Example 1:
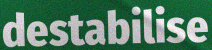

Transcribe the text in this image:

destabilise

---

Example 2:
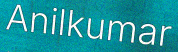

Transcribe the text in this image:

Anilkumar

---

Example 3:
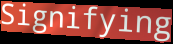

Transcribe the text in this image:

Signifying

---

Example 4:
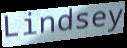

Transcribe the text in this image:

Lindsey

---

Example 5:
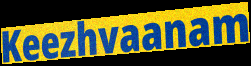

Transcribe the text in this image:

Keezhvaanam